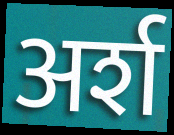
अर्श